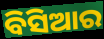
ବିସିଆର